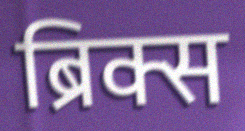
ब्रिक्स